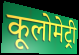
कूलोमेट्री